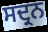
ਸਦ੍ਰਨ